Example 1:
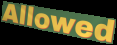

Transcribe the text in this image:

Allowed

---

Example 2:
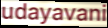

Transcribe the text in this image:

udayavani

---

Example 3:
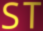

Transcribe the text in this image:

ST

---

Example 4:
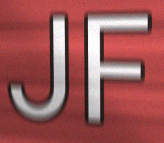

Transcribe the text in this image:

JF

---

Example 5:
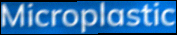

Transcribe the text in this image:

Microplastic